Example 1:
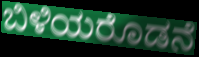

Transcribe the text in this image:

ಬಿಳಿಯರೊಡನೆ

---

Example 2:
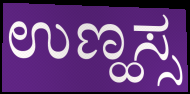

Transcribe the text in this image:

ಉಣ್ಹಸ್ಸ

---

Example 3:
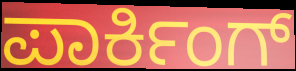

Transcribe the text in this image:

ಪಾರ್ಕಿಂಗ್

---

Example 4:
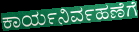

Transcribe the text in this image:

ಕಾರ್ಯನಿರ್ವಹಣೆಗೆ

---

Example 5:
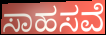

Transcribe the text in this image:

ಸಾಹಸವೆ